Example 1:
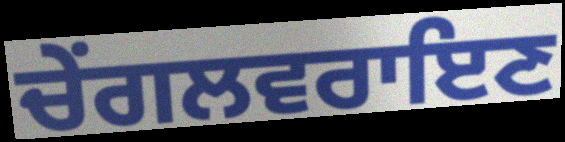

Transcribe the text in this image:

ਚੇਂਗਲਵਰਾਇਣ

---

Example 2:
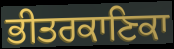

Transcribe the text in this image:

ਭੀਤਰਕਾਣਿਕਾ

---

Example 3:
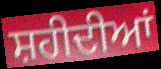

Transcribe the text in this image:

ਸ਼ਹੀਦੀਆਂ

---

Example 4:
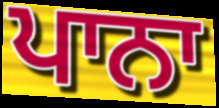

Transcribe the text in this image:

ਪਾਨਾ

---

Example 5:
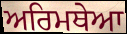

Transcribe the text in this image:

ਅਰਿਮਥੇਆ